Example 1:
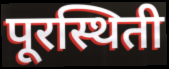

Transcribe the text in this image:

पूरस्थिती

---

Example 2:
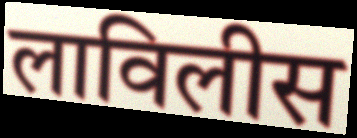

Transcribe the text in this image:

लाविलीस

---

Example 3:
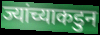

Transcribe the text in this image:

ज्यांच्याकडुन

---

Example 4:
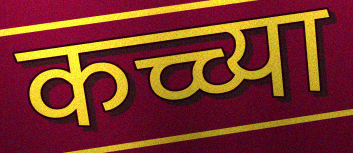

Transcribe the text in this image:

कच्च्या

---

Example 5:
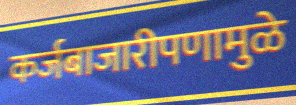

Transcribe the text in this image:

कर्जबाजारीपणामुळे